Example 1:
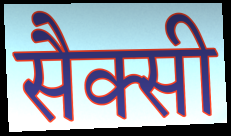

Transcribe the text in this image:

सैक्सी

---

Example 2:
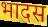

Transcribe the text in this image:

भादस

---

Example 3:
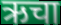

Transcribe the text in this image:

ऋचा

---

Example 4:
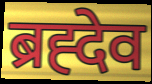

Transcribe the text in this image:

ब्रह्देव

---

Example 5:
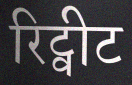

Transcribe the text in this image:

रिट्वीट